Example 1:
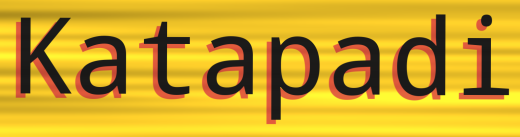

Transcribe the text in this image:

Katapadi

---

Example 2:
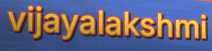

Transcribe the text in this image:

vijayalakshmi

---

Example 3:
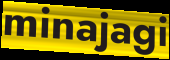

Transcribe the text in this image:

minajagi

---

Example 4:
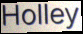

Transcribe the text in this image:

Holley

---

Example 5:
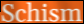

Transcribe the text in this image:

Schism